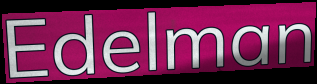
Edelman